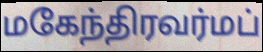
மகேந்திரவர்மப்